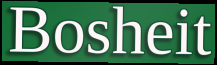
Bosheit